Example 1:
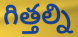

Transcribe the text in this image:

గిత్తల్ని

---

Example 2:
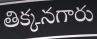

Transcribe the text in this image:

తిక్కనగారు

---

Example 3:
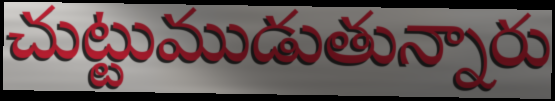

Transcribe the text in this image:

చుట్టుముడుతున్నారు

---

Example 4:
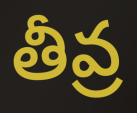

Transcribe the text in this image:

తీవ్ర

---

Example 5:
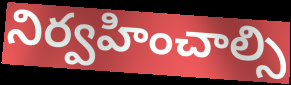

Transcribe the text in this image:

నిర్వహించాల్సి